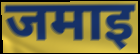
जमाइ